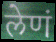
लेणं